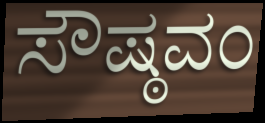
ಸೌಷ್ಠವಂ